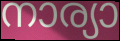
നാര്യാ